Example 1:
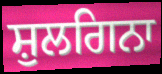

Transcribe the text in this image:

ਸ਼ੁਲਗਿਨਾ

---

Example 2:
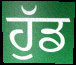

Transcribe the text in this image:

ਹੁੱਡ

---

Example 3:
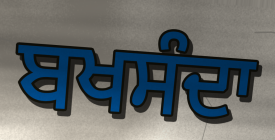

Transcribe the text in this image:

ਬਖਸੰਦਾ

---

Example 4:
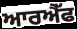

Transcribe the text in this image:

ਆਰਐੱਫ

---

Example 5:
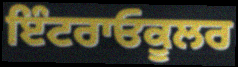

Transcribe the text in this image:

ਇੰਟਰਾਓਕੂਲਰ